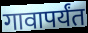
गावापर्यंत